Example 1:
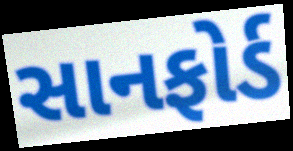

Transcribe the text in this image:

સાનફોર્ડ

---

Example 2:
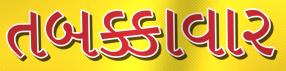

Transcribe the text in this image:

તબક્કાવાર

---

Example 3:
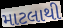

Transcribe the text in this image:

માટલાથી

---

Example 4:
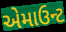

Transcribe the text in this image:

એમાઉન્ટ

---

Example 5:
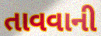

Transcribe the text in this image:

તાવવાની